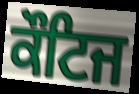
ਕੌਟਿਜ